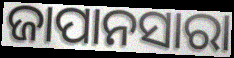
ଜାପାନସାରା